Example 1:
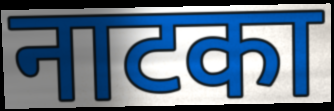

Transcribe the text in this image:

नाटका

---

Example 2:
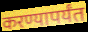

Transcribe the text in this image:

करण्यापर्यंत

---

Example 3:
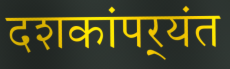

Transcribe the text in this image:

दशकांपर्यंत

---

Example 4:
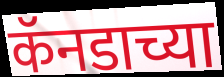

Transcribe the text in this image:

कॅनडाच्या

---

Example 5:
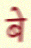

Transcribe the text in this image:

बे